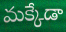
మక్కేడా